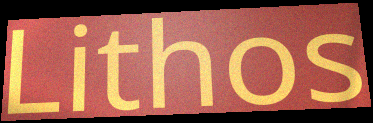
Lithos